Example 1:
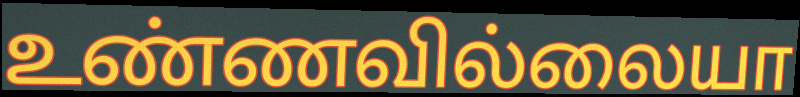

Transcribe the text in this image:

உண்ணவில்லையா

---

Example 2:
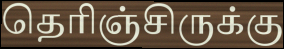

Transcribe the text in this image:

தெரிஞ்சிருக்கு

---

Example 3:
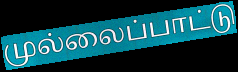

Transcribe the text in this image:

முல்லைப்பாட்டு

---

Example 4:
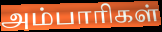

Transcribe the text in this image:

அம்பாரிகள்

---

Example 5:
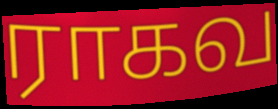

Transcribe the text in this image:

ராகவ